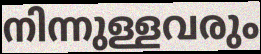
നിന്നുള്ളവരും